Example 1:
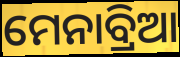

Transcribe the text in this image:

ମେନାବ୍ରିଆ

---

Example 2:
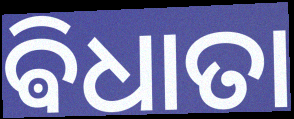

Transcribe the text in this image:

ଵିଧାତା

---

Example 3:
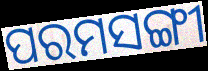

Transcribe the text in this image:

ପରମସଙ୍ଗୀ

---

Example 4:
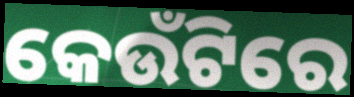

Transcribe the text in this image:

କେଉଁଟିରେ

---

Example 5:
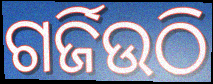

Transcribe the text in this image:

ଗର୍ଜିଉଠି